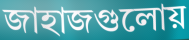
জাহাজগুলোয়